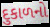
દુકાળનો